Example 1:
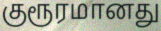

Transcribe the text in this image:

குரூரமானது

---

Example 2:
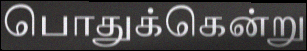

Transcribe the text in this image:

பொதுக்கென்று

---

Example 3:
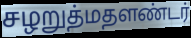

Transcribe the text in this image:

சழறுத்மதளண்டர்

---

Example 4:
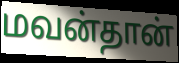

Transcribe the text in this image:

மவன்தான்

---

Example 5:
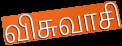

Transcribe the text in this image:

விசுவாசி